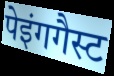
पेइंगगैस्ट